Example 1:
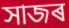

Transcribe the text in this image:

সাজৰ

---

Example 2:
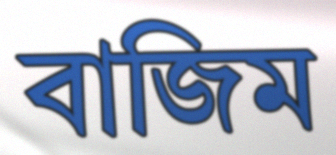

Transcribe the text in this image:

বাজিম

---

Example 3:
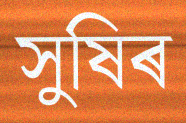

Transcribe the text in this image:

সুষিৰ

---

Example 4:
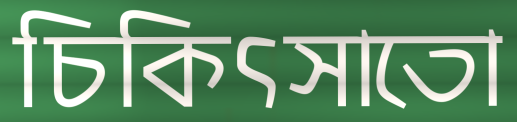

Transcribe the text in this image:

চিকিৎসাতো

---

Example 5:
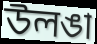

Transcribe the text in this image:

উলঙা